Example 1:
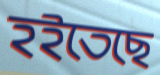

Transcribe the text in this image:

হইতেছে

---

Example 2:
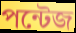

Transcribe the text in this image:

পন্টেজ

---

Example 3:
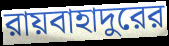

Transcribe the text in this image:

রায়বাহাদুরের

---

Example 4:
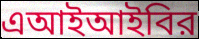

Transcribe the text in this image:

এআইআইবির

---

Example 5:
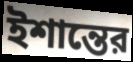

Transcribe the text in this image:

ইশান্তের